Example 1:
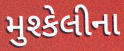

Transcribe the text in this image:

મુશ્કેલીના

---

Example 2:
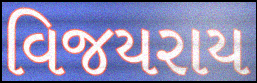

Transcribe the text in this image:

વિજયરાય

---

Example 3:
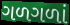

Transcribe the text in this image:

ગળગળાં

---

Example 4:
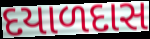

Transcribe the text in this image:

દયાળદાસ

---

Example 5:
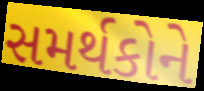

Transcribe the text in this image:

સમર્થકોને